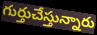
గుర్తుచేస్తున్నారు